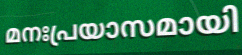
മനഃപ്രയാസമായി